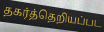
தகர்த்தெறியப்பட